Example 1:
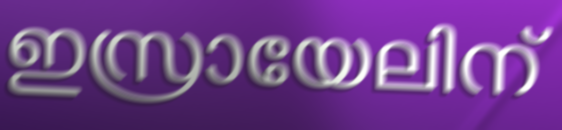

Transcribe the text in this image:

ഇസ്രായേലിന്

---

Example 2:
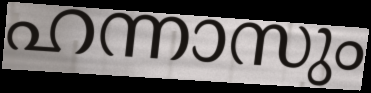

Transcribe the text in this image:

ഹന്നാസും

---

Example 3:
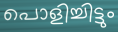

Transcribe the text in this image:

പൊളിച്ചിട്ടും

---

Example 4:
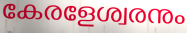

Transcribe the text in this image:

കേരളേശ്വരനും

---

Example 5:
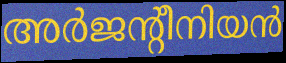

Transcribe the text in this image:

അർജന്റീനിയൻ